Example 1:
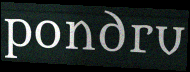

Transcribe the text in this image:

pondru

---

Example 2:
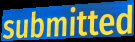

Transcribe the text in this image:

submitted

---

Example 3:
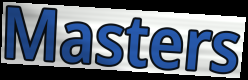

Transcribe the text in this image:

Masters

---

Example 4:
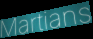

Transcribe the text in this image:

Martians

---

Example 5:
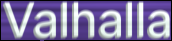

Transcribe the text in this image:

Valhalla